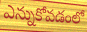
ఎన్నుకోవడంలో